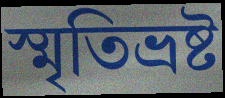
স্মৃতিভ্রষ্ট